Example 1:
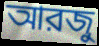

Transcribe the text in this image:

আরজু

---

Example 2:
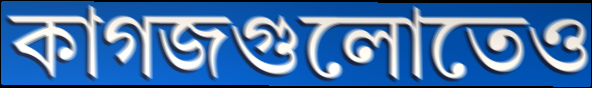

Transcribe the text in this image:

কাগজগুলোতেও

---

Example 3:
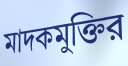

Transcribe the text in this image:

মাদকমুক্তির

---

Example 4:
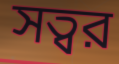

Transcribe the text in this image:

সত্বর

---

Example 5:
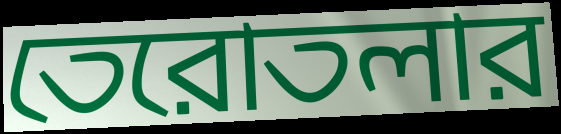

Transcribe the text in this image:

তেরোতলার